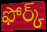
ఫోర్క్